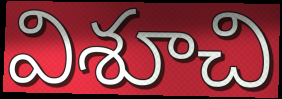
విశూచి